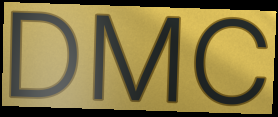
DMC